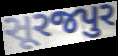
સૂરજપુર